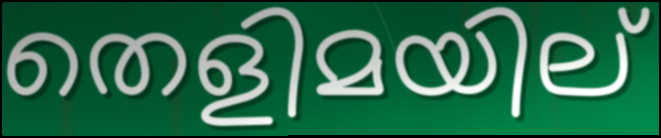
തെളിമയില്